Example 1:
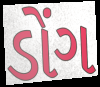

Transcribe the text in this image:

ડોંગ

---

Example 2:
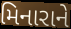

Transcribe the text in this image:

મિનારાને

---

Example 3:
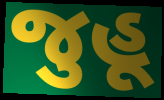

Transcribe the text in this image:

જુહૂ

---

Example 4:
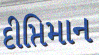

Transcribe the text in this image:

દીપ્તિમાન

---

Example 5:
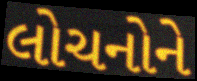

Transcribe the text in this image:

લોચનોને